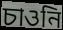
চাওনি